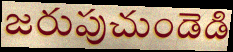
జరుపుచుండెడి